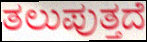
ತಲುಪುತ್ತದೆ